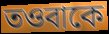
তওবাকে